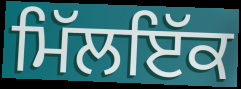
ਮਿੱਲਇੱਕ